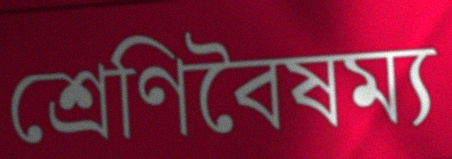
শ্রেণিবৈষম্য